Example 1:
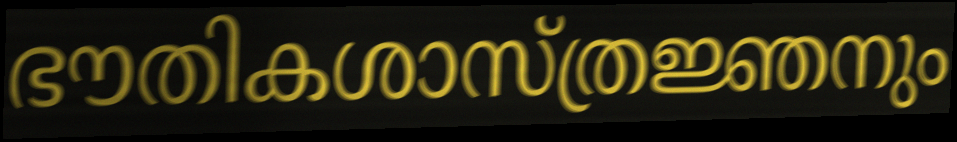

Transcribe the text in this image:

ഭൗതികശാസ്ത്രജ്ഞനും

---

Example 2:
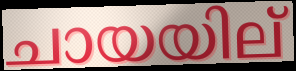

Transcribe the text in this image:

ചായയില്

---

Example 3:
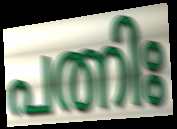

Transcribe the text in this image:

പത്നിഃ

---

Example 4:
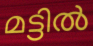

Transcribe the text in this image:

മട്ടിൽ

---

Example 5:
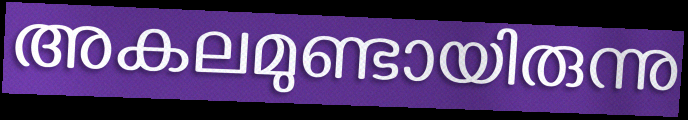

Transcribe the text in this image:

അകലമുണ്ടായിരുന്നു